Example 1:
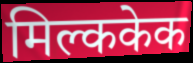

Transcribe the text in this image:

मिल्ककेक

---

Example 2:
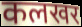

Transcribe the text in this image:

कलखर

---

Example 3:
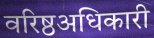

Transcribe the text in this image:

वरिष्ठअधिकारी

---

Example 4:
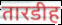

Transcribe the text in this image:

तारडीह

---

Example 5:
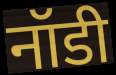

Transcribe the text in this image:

नॉडी